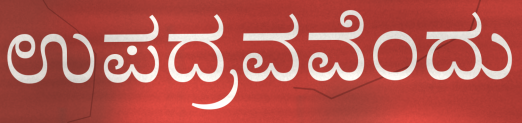
ಉಪದ್ರವವೆಂದು